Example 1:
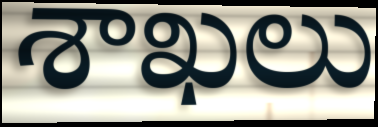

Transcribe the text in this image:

శాఖలు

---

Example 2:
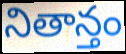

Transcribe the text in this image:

నితాన్తం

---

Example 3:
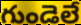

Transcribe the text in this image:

గుండెలే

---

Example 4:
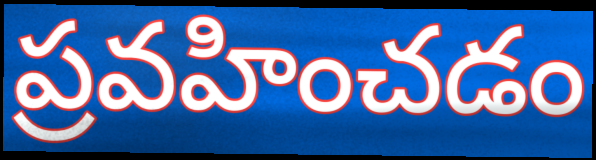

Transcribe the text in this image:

ప్రవహించడం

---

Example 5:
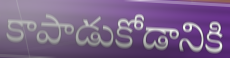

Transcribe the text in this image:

కాపాడుకోడానికి